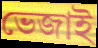
ভেজাই